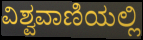
ವಿಶ್ವವಾಣಿಯಲ್ಲಿ